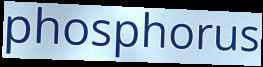
phosphorus